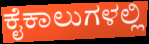
ಕೈಕಾಲುಗಳಲ್ಲಿ